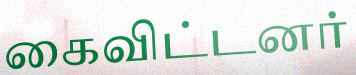
கைவிட்டனர்